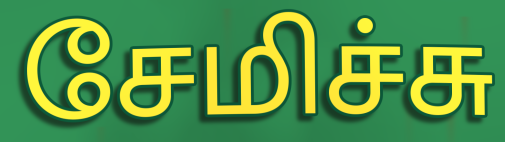
சேமிச்சு